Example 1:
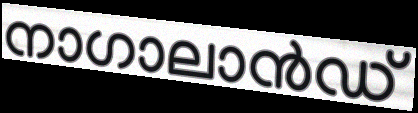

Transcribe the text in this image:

നാഗാലാൻഡ്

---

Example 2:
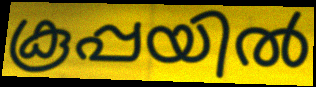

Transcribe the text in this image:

കൂപ്പയിൽ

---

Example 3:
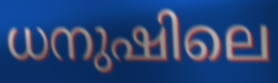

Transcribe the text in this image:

ധനുഷിലെ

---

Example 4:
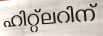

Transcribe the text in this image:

ഹിറ്റ്ലറിന്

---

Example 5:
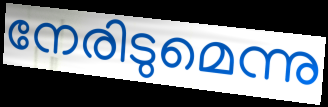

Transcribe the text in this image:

നേരിടുമെന്നു